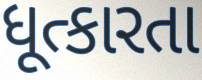
ધૂત્કારતા